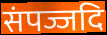
संपज्जदि